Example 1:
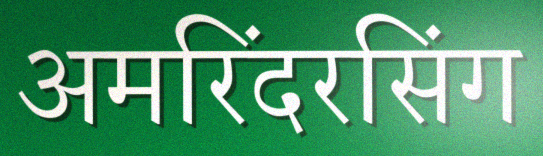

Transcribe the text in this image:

अमरिंदरसिंग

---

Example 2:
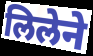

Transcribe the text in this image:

लिलेने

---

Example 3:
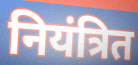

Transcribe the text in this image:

नियंत्रित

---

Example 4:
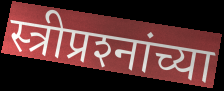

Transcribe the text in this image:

स्त्रीप्रश्नांच्या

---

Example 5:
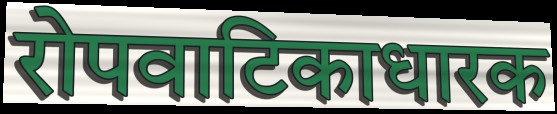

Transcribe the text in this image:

रोपवाटिकाधारक